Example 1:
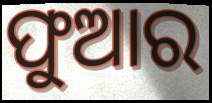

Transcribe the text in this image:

ଫୁଆର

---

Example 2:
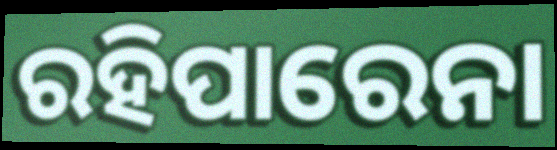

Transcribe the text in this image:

ରହିପାରେନା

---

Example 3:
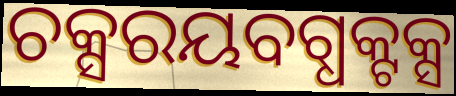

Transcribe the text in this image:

ଚକ୍ସରୟବଗ୍ଧକ୍ଟକ୍ସ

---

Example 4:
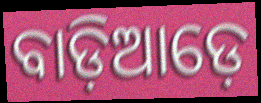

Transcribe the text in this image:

ବାଡ଼ିଆଡ଼େ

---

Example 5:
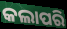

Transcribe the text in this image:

କଲାପରି